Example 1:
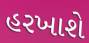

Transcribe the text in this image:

હરખાશે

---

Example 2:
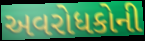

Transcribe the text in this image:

અવરોધકોની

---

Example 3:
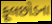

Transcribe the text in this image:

ફૂલછોડના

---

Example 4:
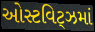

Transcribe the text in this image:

ઓસ્ટવિટ્ઝમાં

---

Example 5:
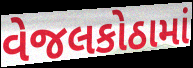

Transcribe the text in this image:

વેજલકોઠામાં